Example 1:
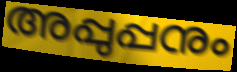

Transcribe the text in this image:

അപ്പുപ്പനും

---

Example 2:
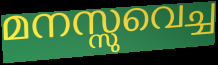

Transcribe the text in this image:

മനസ്സുവെച്ച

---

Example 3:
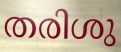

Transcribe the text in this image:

തരിശു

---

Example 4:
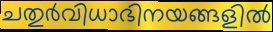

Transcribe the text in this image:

ചതുർവിധാഭിനയങ്ങളിൽ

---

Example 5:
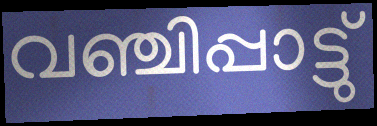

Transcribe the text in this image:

വഞ്ചിപ്പാട്ടു്